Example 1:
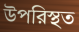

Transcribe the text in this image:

উপরিস্থত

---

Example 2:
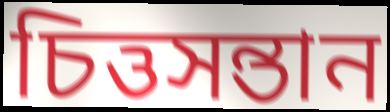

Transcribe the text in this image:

চিত্তসন্তান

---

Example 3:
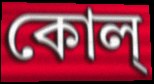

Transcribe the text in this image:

কোল্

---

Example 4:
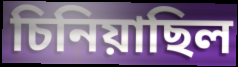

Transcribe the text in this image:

চিনিয়াছিল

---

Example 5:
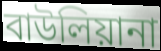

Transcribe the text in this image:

বাউলিয়ানা